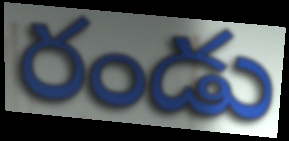
రండు